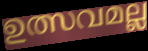
ഉത്സവമല്ല